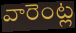
వారెంట్ల